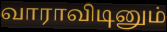
வாராவிடினும்